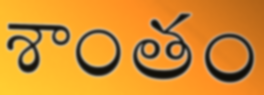
శాంతం